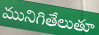
మునిగితేలుతూ